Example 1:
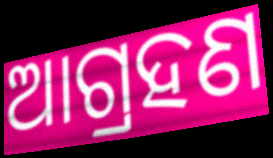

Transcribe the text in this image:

ଆଗ୍ରହଣ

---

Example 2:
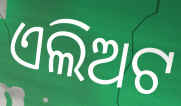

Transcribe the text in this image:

ଏଲିଅଟ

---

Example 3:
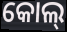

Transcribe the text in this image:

କୋଲ୍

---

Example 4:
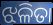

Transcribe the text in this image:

ଝଳିତା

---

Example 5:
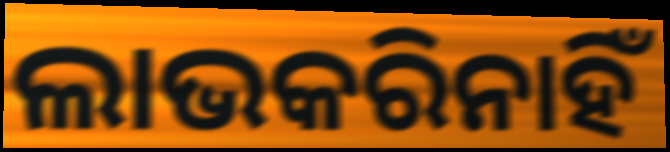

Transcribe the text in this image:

ଲାଭକରିନାହିଁ